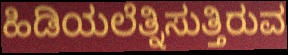
ಹಿಡಿಯಲೆತ್ನಿಸುತ್ತಿರುವ